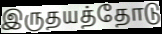
இருதயத்தோடு